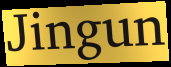
Jingun